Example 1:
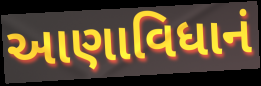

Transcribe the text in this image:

આણાવિધાનં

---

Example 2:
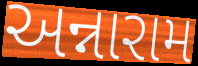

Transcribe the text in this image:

અન્નારામ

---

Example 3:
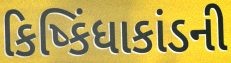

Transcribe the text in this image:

કિષ્કિંધાકાંડની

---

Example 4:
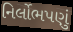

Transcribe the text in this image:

નિર્લોભપણું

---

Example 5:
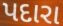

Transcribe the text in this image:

પદારા